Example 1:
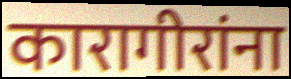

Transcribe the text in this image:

कारागीरांना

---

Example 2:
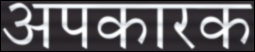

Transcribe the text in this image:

अपकारक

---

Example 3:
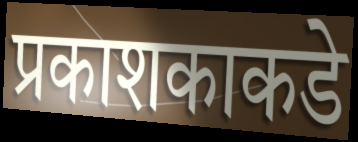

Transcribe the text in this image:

प्रकाशकाकडे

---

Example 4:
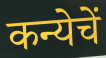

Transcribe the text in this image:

कन्येचें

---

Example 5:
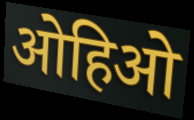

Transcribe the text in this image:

ओहिओ